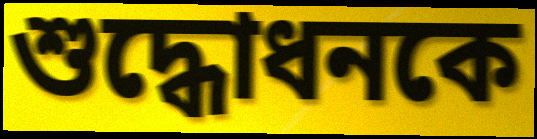
শুদ্ধোধনকে